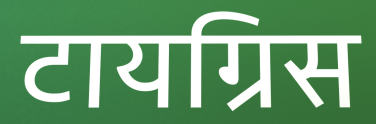
टायग्रिस